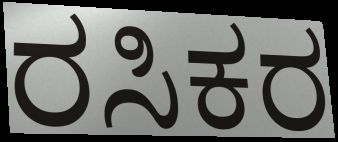
ರಸಿಕರ